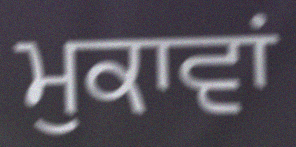
ਮੁਕਾਵਾਂ